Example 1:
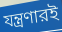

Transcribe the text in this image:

যন্ত্রণারই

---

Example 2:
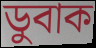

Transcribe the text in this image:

ডুবাক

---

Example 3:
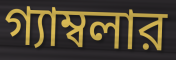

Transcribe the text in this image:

গ্যাম্বলার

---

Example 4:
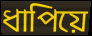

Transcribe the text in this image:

ধাপিয়ে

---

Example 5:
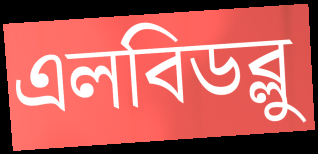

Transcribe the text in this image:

এলবিডব্লু